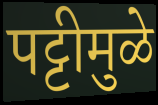
पट्टीमुळे